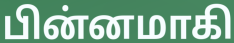
பின்னமாகி